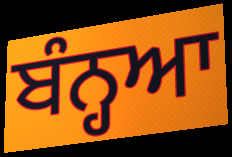
ਬੰਨ੍ਹਆ